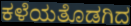
ಕಳೆಯತೊಡಗಿದ